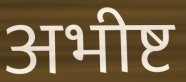
अभीष्ट